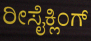
ರೀಸೈಕ್ಲಿಂಗ್